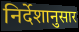
निर्देशानुसार